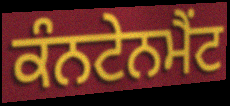
ਕੰਨਟੇਨਮੈਂਟ